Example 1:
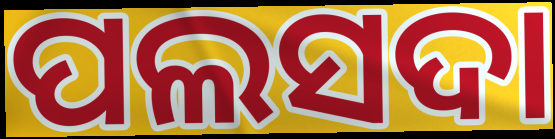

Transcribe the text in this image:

ପଲସଦା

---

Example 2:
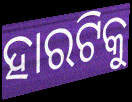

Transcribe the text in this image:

ହାରଟିକୁ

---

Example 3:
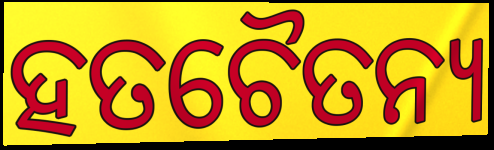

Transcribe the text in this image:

ହତଚୈତନ୍ୟ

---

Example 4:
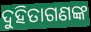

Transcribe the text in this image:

ଦୁହିତାଗଣଙ୍କ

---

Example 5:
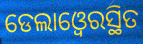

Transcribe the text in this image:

ଡେଲାଓ୍ବେରସ୍ଥିତ